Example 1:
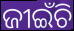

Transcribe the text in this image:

ଜୀଇଁଚି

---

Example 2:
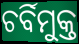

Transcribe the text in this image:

ଚର୍ବିମୁକ୍ତ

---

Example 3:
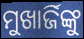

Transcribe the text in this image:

ମୁଖାର୍ଜିଙ୍କୁ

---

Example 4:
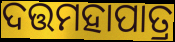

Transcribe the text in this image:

ଦତ୍ତମହାପାତ୍ର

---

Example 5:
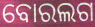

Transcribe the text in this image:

ବୋରଲଗ